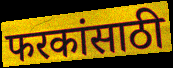
फरकांसाठी